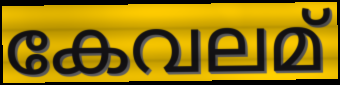
കേവലമ്